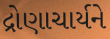
દ્રોણાચાર્યને